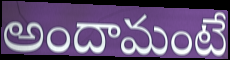
అందామంటే